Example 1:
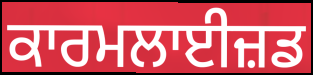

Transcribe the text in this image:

ਕਾਰਮਲਾਈਜ਼ਡ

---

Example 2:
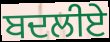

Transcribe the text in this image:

ਬਦਲੀਏ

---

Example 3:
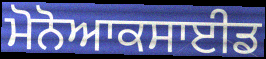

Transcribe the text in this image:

ਮੋਨੋਆਕਸਾਈਡ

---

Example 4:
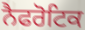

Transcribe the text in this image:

ਨੈਫਰੋਟਿਕ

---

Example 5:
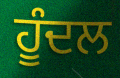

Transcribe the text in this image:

ਹੂੰਦਲ